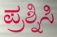
ಪ್ರಶ್ನಿಸಿ